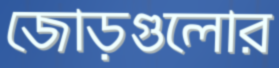
জোড়গুলোর